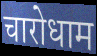
चारोधाम